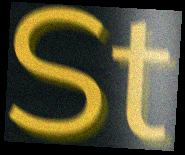
St